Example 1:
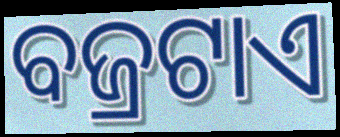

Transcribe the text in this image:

ବଜ୍ରଟାଏ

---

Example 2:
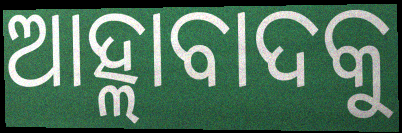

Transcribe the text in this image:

ଆହ୍ଲାବାଦକୁ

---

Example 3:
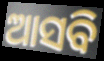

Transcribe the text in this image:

ଆସବି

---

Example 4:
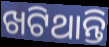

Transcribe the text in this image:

ଖଟିଥାନ୍ତି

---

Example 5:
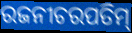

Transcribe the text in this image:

ରଜନୀଚରପତିମ୍